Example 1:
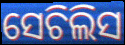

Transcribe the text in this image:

ସେଚିଲିସ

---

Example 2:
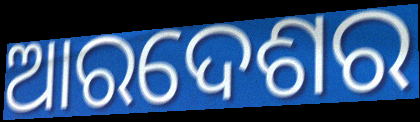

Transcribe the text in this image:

ଆରଦେଶର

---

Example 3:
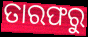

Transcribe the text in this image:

ତାରଫରୁ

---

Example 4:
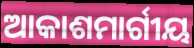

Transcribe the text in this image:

ଆକାଶମାର୍ଗୀୟ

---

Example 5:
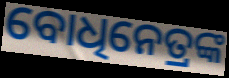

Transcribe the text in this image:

ବୋଧିନେତ୍ରଙ୍କ